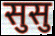
सुसु